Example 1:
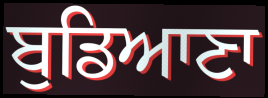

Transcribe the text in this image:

ਬੁਡਿਆਣਾ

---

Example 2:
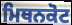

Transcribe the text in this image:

ਮਿਥਨਕੋਟ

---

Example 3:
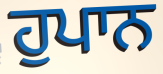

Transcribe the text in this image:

ਹੁਪਾਨ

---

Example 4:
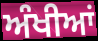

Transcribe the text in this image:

ਅੰਖੀਆਂ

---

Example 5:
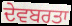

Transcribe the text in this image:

ਦੇਵਬਰਤਾ